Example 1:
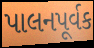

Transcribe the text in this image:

પાલનપૂર્વક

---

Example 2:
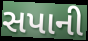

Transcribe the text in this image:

સપાની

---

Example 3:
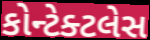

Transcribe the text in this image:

કોન્ટેક્ટલેસ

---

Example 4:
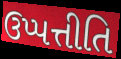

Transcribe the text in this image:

ઉપ્પત્તીતિ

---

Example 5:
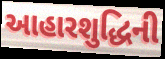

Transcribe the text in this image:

આહારશુદ્ધિની